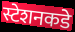
स्टेशनकडे